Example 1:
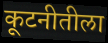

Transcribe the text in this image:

कूटनीतीला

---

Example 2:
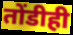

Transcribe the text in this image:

तोंडीही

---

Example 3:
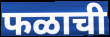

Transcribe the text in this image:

फळाची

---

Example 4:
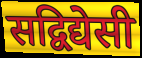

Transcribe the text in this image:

सद्विद्येसी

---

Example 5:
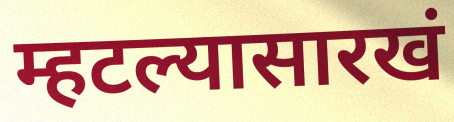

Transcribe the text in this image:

म्हटल्यासारखं